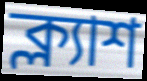
ক্ল্যাশ